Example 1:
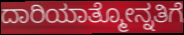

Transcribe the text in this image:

ದಾರಿಯಾತ್ಮೋನ್ನತಿಗೆ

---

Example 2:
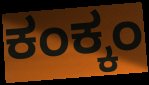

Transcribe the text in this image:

ಕಂಕ್ಕಂ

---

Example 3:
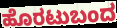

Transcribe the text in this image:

ಹೊರಟುಬಂದ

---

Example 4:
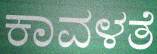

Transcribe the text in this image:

ಕಾವಳತೆ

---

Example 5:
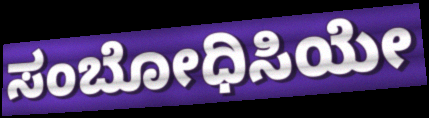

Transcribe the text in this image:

ಸಂಬೋಧಿಸಿಯೇ